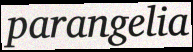
parangelia